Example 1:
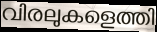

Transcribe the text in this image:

വിരലുകളെത്തി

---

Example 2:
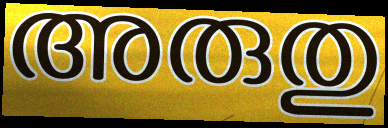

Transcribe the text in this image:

അരുതു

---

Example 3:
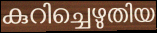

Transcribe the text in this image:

കുറിച്ചെഴുതിയ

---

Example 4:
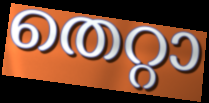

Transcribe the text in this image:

തെറ്റാ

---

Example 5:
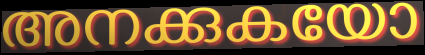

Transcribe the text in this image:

അനക്കുകയോ